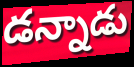
డన్నాడు